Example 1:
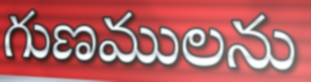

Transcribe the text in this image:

గుణములను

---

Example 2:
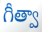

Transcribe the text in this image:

గీత్వా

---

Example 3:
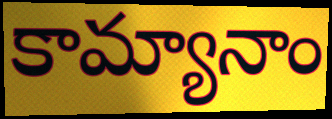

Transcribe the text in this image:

కామ్యానాం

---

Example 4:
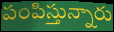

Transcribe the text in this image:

పంపిస్తున్నారు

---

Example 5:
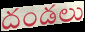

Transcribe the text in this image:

దండలు